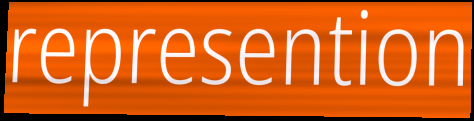
represention